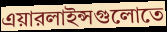
এয়ারলাইন্সগুলোতে